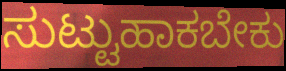
ಸುಟ್ಟುಹಾಕಬೇಕು